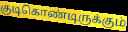
குடிகொண்டிருக்கும்